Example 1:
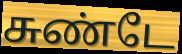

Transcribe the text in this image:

சுண்டே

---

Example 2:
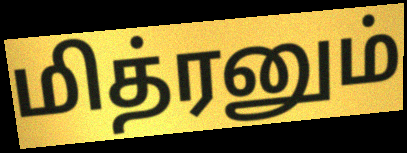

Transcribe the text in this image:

மித்ரனும்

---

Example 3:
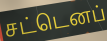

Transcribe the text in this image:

சட்டெனப்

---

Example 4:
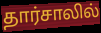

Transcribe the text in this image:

தார்சாலில்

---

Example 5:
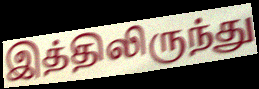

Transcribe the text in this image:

இத்திலிருந்து